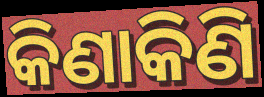
କିଣାକିଣି